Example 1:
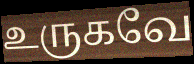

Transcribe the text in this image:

உருகவே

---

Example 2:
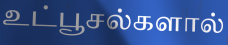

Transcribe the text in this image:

உட்பூசல்களால்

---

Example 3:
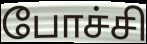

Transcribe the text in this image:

போச்சி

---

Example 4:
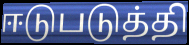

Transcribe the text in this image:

ஈடுபடுத்தி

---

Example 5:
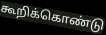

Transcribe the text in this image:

கூறிக்கொண்டு